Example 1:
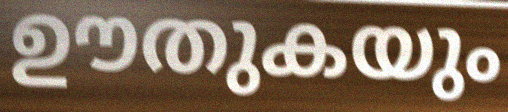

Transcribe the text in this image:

ഊതുകയും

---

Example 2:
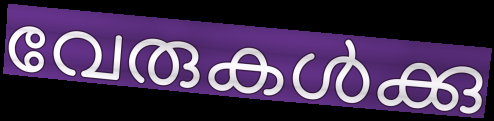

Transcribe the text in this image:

വേരുകൾക്കു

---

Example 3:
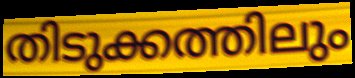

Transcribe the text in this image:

തിടുക്കത്തിലും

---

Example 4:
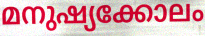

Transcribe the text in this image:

മനുഷ്യക്കോലം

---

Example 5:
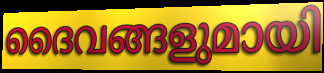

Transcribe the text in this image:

ദൈവങ്ങളുമായി